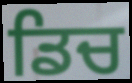
ਡਿਚ